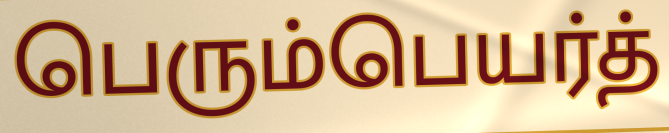
பெரும்பெயர்த்